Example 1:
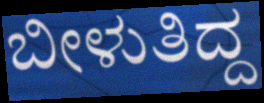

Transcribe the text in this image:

ಬೀಳುತಿದ್ದ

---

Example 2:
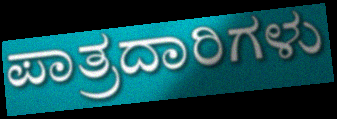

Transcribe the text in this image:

ಪಾತ್ರದಾರಿಗಳು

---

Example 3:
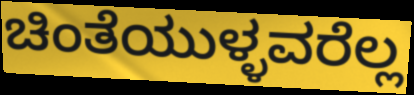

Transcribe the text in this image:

ಚಿಂತೆಯುಳ್ಳವರೆಲ್ಲ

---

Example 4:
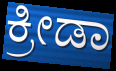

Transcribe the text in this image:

ಕ್ರೀಡಾ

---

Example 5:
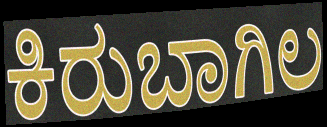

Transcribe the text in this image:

ಕಿರುಬಾಗಿಲ